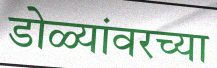
डोळ्यांवरच्या